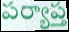
పర్యాప్త